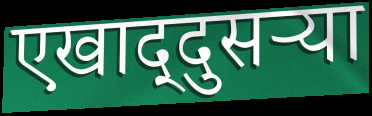
एखाद्‌दुसऱ्या